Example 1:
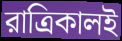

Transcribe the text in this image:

রাত্রিকালই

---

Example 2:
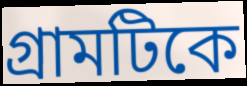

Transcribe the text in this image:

গ্রামটিকে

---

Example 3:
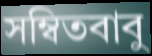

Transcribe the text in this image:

সম্বিতবাবু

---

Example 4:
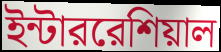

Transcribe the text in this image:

ইন্টাররেশিয়াল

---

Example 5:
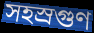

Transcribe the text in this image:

সহস্রগুণ